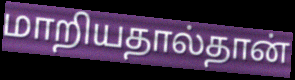
மாறியதால்தான்